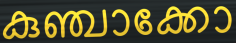
കുഞ്ചാക്കോ